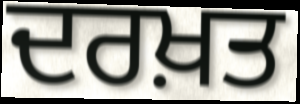
ਦਰਖ਼ਤ